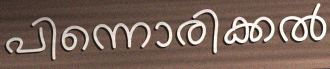
പിന്നൊരിക്കൽ